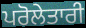
ਪਰੋਲੇਤਾਰੀ